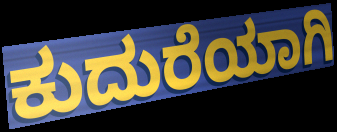
ಕುದುರೆಯಾಗಿ